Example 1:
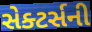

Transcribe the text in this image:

સેક્ટર્સની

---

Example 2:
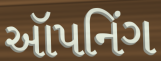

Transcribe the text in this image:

ઑપનિંગ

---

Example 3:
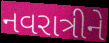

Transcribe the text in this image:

નવરાત્રીને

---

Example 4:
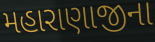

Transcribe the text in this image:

મહારાણાજીના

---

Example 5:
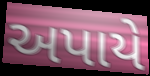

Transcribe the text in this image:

અપાયે